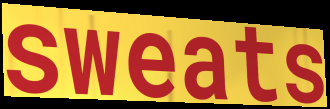
sweats